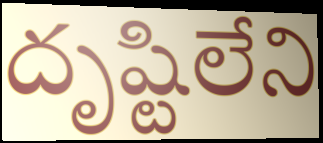
దృష్టిలేని